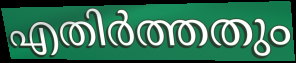
എതിർത്തതും